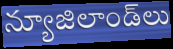
న్యూజిలాండ్‌లు